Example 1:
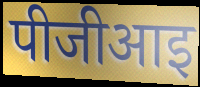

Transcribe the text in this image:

पीजीआइ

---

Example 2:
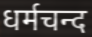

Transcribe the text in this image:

धर्मचन्द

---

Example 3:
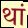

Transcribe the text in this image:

थां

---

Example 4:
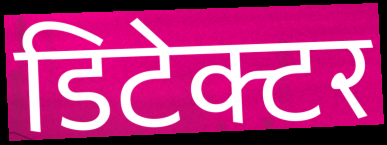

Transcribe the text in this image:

डिटेक्टर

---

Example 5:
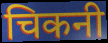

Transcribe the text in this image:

चिकनी